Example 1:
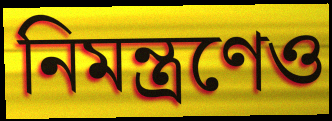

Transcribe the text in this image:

নিমন্ত্রণেও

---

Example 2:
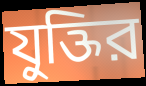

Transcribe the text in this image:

যুক্তির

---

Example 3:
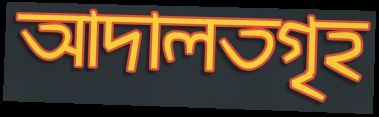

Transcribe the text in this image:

আদালতগৃহ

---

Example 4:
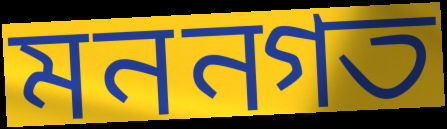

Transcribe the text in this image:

মননগত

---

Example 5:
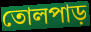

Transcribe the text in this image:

তোলপাড়